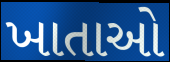
ખાતાઓ